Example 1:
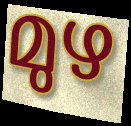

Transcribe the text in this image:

മുഴ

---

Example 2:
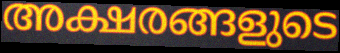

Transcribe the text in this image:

അക്ഷരങ്ങളുടെ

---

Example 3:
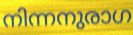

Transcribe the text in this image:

നിന്നനുരാഗ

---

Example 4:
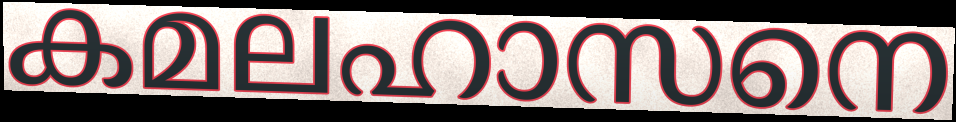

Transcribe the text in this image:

കമലഹാസനെ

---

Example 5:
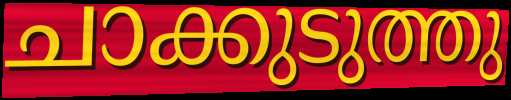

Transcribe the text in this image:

ചാക്കുടുത്തു